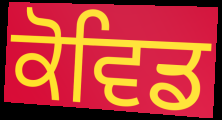
ਕੋਵਿਡ